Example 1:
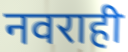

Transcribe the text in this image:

नवराही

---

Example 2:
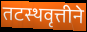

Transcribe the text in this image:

तटस्थवृत्तीने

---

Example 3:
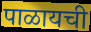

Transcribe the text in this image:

पाळायची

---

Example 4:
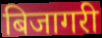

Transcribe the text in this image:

बिजागरी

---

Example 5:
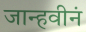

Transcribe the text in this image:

जान्हवीनं